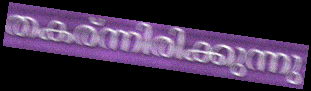
തകര്ന്നിരിക്കുന്നു